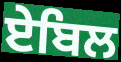
ਏਬਿਲ